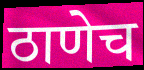
ठाणेच